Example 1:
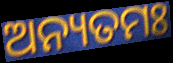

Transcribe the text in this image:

ଅନ୍ୟତମଃ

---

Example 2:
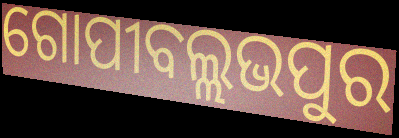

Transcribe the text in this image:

ଗୋପୀବଲ୍ଲଭପୁର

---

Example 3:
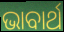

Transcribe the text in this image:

ଭାବାର୍ଥ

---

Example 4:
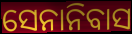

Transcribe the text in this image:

ସେନାନିବାସ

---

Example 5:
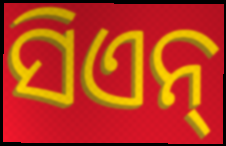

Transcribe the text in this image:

ସିଏନ୍